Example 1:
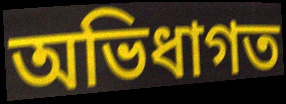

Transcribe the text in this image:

অভিধাগত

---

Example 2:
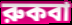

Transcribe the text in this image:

রুকবা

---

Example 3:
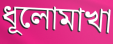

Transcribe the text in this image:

ধূলোমাখা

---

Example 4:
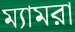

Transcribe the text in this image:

ম্যামরা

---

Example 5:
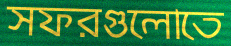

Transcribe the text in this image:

সফরগুলোতে